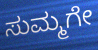
ಸುಮ್ಮಗೇ